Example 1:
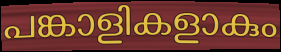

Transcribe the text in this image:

പങ്കാളികളാകും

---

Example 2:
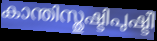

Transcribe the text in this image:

കാന്തിസ്തുഷ്ടിപുഷ്ടീ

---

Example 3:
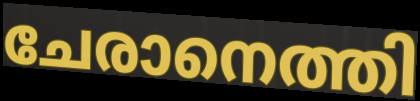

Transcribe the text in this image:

ചേരാനെത്തി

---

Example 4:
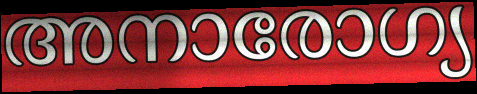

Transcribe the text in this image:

അനാരോഗ്യ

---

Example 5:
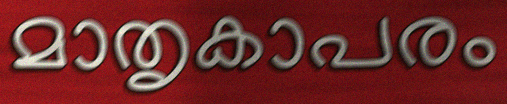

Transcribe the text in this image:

മാതൃകാപരം